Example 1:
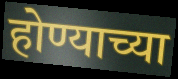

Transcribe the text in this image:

होण्‍याच्‍या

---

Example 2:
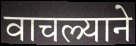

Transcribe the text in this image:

वाचल्याने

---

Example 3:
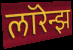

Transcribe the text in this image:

लॉरेन्झ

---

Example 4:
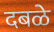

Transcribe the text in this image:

दबळे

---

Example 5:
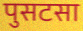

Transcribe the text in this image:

पुसटसा